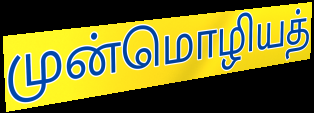
முன்மொழியத்